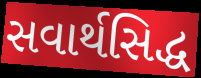
સવાર્થસિદ્ધ